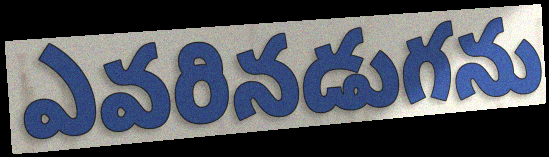
ఎవరినడుగను